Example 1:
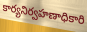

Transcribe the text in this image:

కార్యనిర్వహణాధికారి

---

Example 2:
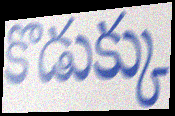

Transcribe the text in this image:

కొడుక్కు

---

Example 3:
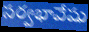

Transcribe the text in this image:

సర్వభావేషు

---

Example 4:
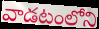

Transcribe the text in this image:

వాడటంలోని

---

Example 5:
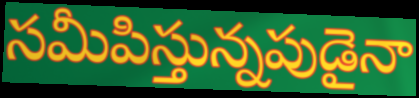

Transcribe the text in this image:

సమీపిస్తున్నపుడైనా